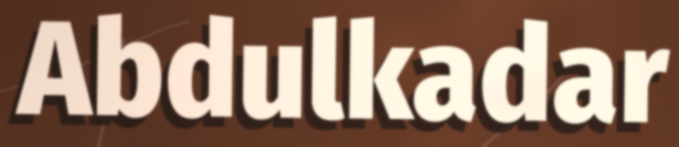
Abdulkadar